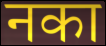
नका